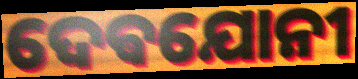
ଦେଵଯୋନୀ